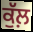
ਕੁੱਲ਼